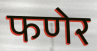
फणेर